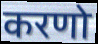
करणो